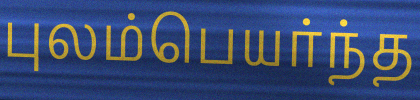
புலம்பெயர்ந்த